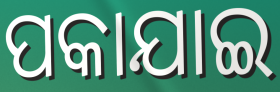
ପକାଯାଇ